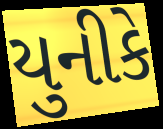
યુનીકે